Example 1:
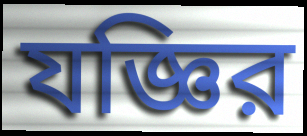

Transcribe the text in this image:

যজ্ঞির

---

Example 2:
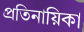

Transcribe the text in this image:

প্রতিনায়িকা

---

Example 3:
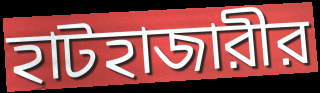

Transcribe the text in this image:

হাটহাজারীর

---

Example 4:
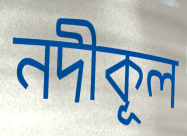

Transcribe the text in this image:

নদীকূল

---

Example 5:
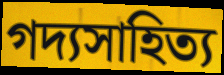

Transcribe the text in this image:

গদ্যসাহিত্য